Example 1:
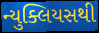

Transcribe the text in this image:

ન્યુક્લિયસથી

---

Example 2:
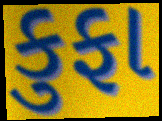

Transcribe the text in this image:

કુફા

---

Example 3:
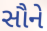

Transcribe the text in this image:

સૌને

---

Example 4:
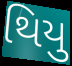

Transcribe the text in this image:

થિયુ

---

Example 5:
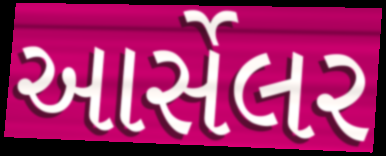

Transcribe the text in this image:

આર્સેલર